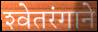
श्वेतरंगाने